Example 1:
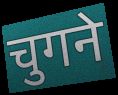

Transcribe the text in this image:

चुगने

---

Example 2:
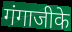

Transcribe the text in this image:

गंगाजीके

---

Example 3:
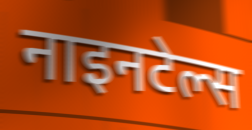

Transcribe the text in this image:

नाइनटेल्स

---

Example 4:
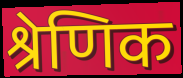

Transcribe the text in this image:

श्रेणिक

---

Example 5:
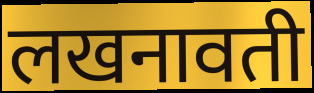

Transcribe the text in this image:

लखनावती